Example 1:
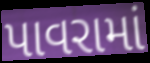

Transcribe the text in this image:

પાવરામાં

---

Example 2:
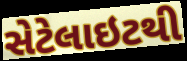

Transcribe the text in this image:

સેટેલાઇટથી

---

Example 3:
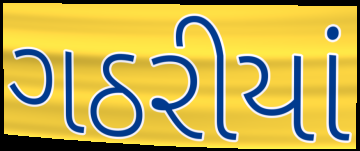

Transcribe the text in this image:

ગઠરીયાં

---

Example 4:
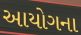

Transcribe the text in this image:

આયોગના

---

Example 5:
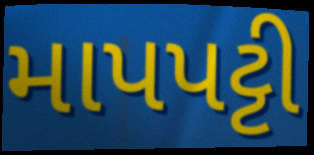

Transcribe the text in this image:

માપપટ્ટી